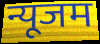
न्यूजम